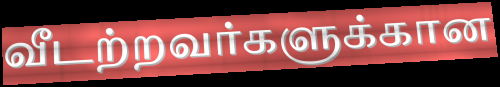
வீடற்றவர்களுக்கான